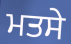
ਮਤਸੇ